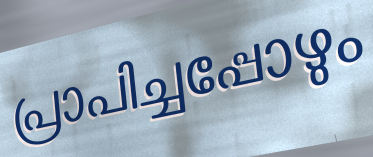
പ്രാപിച്ചപ്പോഴും